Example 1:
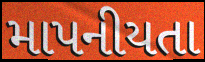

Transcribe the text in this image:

માપનીયતા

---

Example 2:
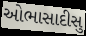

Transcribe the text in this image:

ઓભાસાદીસુ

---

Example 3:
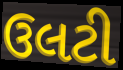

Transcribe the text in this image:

ઉલટી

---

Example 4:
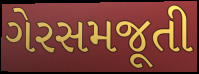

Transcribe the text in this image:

ગેરસમજૂતી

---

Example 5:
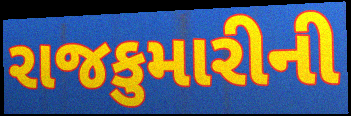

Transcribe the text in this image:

રાજકુમારીની